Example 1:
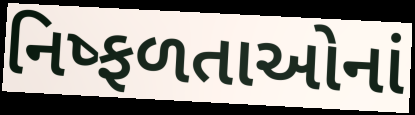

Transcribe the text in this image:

નિષ્ફળતાઓનાં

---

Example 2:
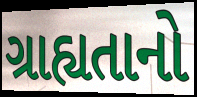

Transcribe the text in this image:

ગ્રાહ્યતાનો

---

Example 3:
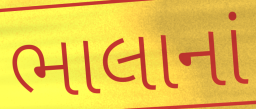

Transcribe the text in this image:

ભાલાનાં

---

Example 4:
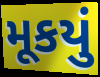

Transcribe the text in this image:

મૂકયું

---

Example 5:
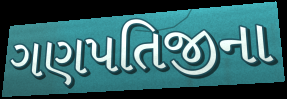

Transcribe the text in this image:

ગણપતિજીના